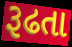
રૂઢતા